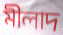
মীলাদ